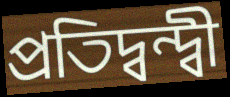
প্রতিদ্বন্দ্বী